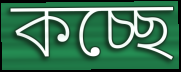
কচ্ছে